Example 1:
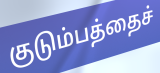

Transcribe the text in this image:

குடும்பத்தைச்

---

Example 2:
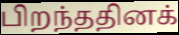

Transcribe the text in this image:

பிறந்ததினக்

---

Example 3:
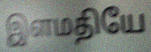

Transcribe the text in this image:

இளமதியே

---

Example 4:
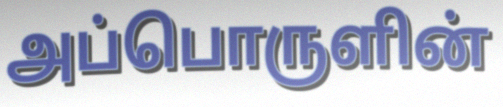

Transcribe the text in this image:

அப்பொருளின்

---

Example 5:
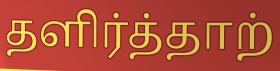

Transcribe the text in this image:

தளிர்த்தாற்